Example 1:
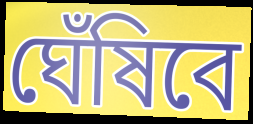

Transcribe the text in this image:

ঘেঁষিবে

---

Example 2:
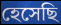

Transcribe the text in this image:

হেসেছি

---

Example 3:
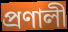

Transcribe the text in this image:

প্রণালী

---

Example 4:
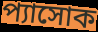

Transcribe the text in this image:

প্যাসোক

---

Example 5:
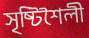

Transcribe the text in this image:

সৃষ্টিশৈলী